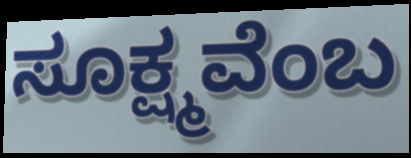
ಸೂಕ್ಷ್ಮವೆಂಬ